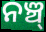
ନଞ୍ଚ୍